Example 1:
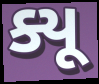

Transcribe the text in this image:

ક્યૂ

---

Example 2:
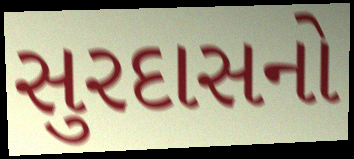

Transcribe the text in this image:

સુરદાસનો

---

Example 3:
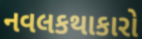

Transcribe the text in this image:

નવલકથાકારો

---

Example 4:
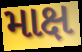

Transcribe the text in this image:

માક્ષ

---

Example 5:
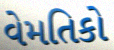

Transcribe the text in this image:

વેમતિકો